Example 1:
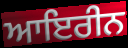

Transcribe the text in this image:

ਆਇਰੀਨ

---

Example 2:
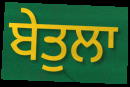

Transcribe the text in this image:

ਬੇਤੁਲਾ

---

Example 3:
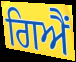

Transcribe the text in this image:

ਗਿਐਂ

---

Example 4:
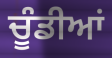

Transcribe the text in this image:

ਚੂੰਡੀਆਂ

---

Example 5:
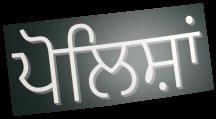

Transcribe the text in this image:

ਪੋਲਿਸ਼ਾਂ